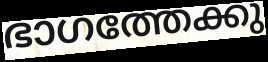
ഭാഗത്തേക്കു